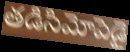
తడిసిమోపెడై